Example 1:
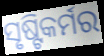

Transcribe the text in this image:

ସୃଷ୍ଟିକର୍ମର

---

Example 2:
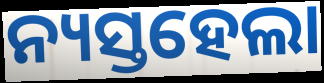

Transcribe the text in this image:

ନ୍ୟସ୍ତହେଲା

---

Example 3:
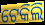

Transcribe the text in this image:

ଟେକିଲି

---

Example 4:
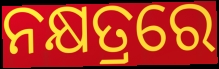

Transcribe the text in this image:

ନକ୍ଷତ୍ରରେ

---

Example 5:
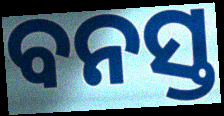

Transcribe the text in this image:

ବନସ୍ତ